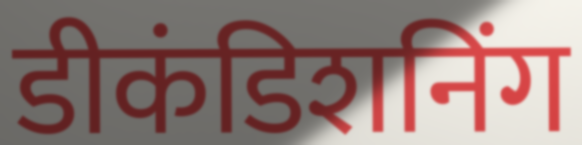
डीकंडिशनिंग